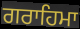
ਗਰਾਹਿਮਾ